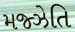
મજ્ઝેતિ